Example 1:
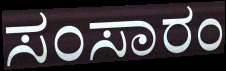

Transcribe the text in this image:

ಸಂಸಾರಂ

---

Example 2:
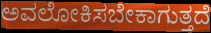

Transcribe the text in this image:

ಅವಲೋಕಿಸಬೇಕಾಗುತ್ತದೆ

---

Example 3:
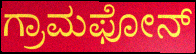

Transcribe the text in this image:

ಗ್ರಾಮಫೋನ್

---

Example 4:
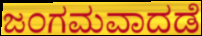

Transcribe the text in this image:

ಜಂಗಮವಾದಡೆ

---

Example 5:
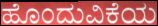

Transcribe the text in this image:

ಹೊಂದುವಿಕೆಯ